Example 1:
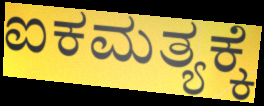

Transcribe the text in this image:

ಐಕಮತ್ಯಕ್ಕೆ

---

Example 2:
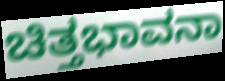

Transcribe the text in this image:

ಚಿತ್ತಭಾವನಾ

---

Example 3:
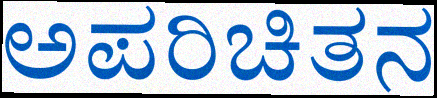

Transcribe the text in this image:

ಅಪರಿಚಿತನ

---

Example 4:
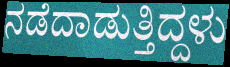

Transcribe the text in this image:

ನಡೆದಾಡುತ್ತಿದ್ದಳು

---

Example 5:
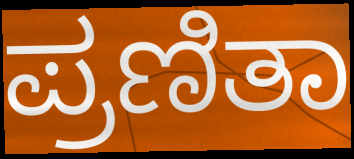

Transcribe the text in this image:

ಪ್ರಣಿತಾ